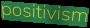
positivism